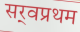
सर्वप्रथम